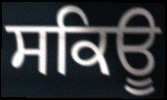
ਸਕਿਊ